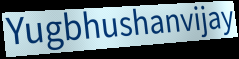
Yugbhushanvijay